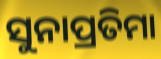
ସୁନାପ୍ରତିମା